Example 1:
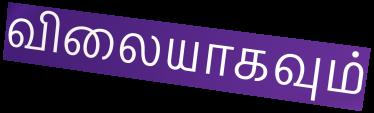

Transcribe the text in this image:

விலையாகவும்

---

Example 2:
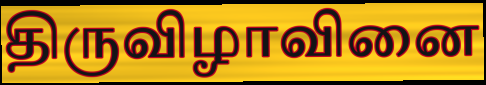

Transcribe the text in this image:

திருவிழாவினை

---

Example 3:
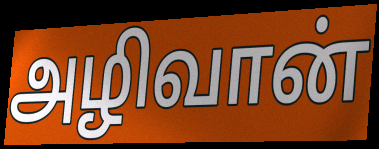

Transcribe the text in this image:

அழிவான்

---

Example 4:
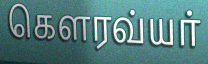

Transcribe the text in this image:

கௌரவ்யர்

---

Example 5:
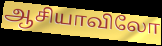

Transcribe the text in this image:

ஆசியாவிலோ